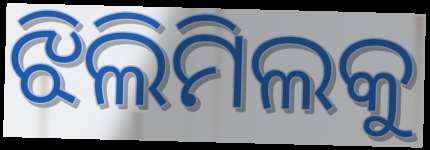
ଝିଲିମିଲକୁ